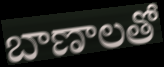
బాణాలతో